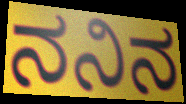
ನನಿನ